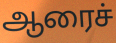
ஆரைச்